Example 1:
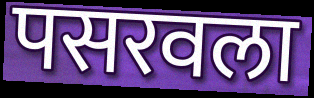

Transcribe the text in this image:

पसरवला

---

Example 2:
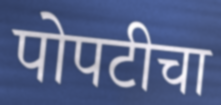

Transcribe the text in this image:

पोपटीचा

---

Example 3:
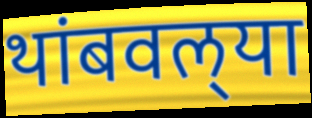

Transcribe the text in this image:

थांबवल्या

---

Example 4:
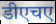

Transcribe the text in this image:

डीएचए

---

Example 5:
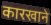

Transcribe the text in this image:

कारखाने